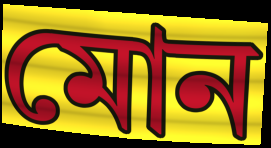
মোন